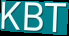
KBT